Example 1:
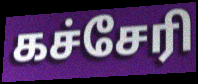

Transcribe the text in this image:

கச்சேரி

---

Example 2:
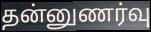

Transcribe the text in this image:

தன்னுணர்வு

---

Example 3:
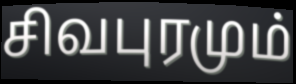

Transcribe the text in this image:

சிவபுரமும்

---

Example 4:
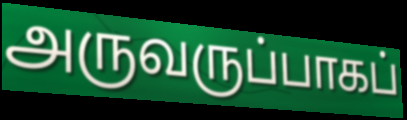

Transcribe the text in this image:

அருவருப்பாகப்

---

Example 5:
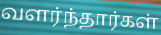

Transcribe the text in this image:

வளர்ந்தார்கள்